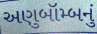
અણુબૉમ્બનું